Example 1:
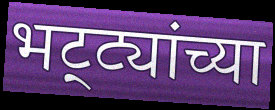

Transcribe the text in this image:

भट्ट्यांच्या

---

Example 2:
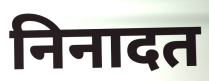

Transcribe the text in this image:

निनादत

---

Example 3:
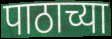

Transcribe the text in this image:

पाठाच्या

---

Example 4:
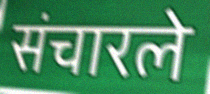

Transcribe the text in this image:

संचारले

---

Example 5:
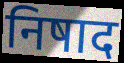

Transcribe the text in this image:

निषाद